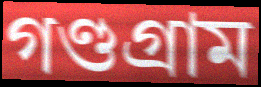
গণ্ডগ্রাম